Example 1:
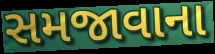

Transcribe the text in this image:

સમજાવાના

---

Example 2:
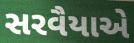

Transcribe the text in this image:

સરવૈયાએ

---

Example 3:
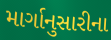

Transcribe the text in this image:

માર્ગાનુસારીના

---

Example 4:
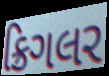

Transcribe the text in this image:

ક્રિગલર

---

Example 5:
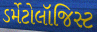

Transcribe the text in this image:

ડર્મેટોલૉજિસ્ટ